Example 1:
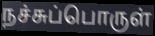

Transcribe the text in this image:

நச்சுப்பொருள்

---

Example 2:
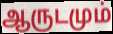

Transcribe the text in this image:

ஆருடமும்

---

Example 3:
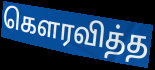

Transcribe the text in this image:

கெளரவித்த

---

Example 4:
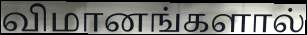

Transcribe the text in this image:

விமானங்களால்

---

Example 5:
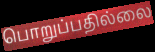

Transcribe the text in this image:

பொறுப்பதில்லை